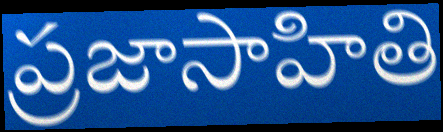
ప్రజాసాహితి